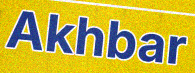
Akhbar